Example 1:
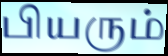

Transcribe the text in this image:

பியரும்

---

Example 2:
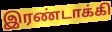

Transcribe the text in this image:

இரண்டாக்கி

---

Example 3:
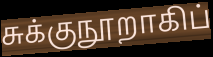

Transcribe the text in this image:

சுக்குநூறாகிப்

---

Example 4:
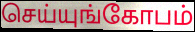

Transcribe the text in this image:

செய்யுங்கோபம்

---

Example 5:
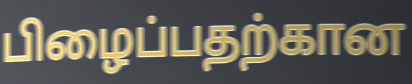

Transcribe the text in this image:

பிழைப்பதற்கான